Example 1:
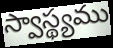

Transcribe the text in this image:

స్వాస్థ్యము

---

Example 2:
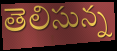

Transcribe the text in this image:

తెలిసున్న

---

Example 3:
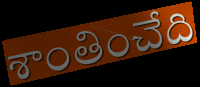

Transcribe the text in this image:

శాంతించేది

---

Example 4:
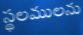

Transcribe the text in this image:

స్థలములను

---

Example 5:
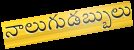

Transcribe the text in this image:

నాలుగుడబ్బులు